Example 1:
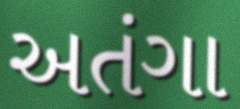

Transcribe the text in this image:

અતંગા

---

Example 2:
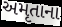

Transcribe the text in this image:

અમૃતાના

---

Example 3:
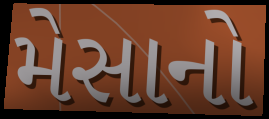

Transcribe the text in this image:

મેસાનો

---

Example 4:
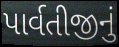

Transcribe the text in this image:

પાર્વતીજીનું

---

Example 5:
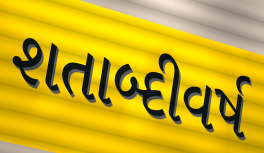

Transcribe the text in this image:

શતાબ્દીવર્ષ